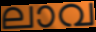
ലാവ